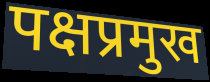
पक्षप्रमुख